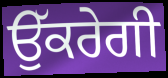
ਉੱਕਰੇਗੀ